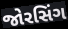
જોરસિંગ